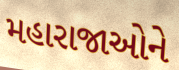
મહારાજાઓને